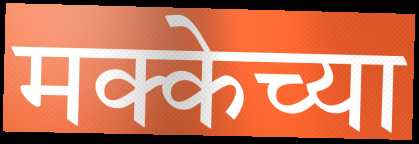
मक्केच्या